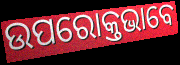
ଉପରୋକ୍ତଭାବେ